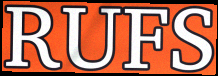
RUFS